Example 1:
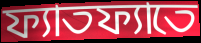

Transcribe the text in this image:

ফ্যাতফ্যাতে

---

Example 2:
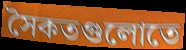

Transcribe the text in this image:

সৈকতগুলোতে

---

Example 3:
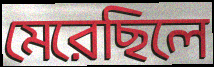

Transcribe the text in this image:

মেরেছিলে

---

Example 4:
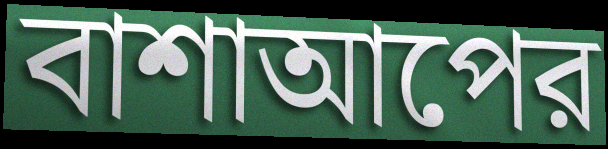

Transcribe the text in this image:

বাশাআপের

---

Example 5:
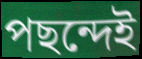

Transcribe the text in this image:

পছন্দেই